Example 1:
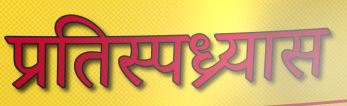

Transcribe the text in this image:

प्रतिस्पध्र्यास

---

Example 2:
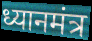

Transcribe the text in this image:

ध्यानमंत्र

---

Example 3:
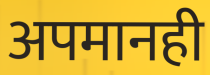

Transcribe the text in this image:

अपमानही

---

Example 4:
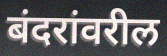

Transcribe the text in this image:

बंदरांवरील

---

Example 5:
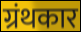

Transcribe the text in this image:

ग्रंथकार